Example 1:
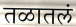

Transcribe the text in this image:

तळातलं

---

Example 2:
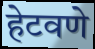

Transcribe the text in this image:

हेटवणे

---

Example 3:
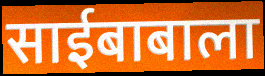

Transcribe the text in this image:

साईबाबाला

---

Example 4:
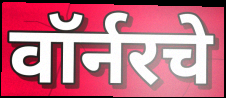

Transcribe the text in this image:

वॉर्नरचे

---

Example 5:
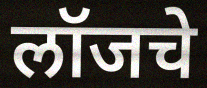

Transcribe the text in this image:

लॉजचे